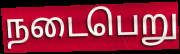
நடைபெறு